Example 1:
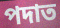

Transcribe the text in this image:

পদাত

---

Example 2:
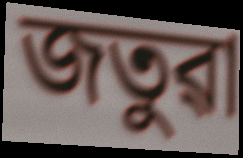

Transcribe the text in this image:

জতুৱা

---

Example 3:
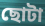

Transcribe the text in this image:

ছোটা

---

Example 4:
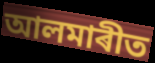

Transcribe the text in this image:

আলমাৰীত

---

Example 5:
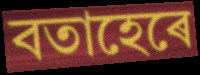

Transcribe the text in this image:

বতাহেৰে